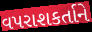
વપરાશકર્તાને